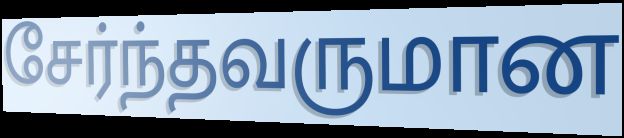
சேர்ந்தவருமான